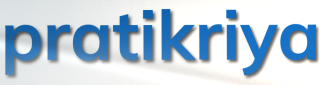
pratikriya